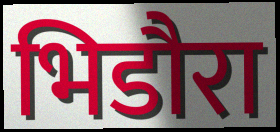
भिडौरा